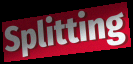
Splitting